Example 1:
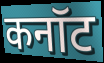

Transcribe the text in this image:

कनॉट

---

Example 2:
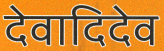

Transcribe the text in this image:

देवादिदेव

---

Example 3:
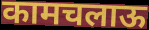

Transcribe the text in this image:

कामचलाऊ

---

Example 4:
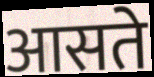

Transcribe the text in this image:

आसते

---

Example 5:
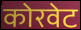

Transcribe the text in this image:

कोरवेट